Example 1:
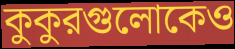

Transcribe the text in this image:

কুকুরগুলোকেও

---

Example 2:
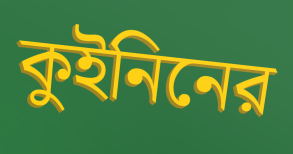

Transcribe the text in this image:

কুইনিনের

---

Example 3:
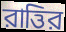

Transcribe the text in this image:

রাত্তির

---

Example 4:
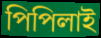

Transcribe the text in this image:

পিপিলাই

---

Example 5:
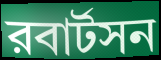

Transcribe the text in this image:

রবার্টসন